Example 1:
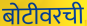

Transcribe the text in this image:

बोटीवरची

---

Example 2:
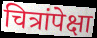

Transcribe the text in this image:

चित्रांपेक्षा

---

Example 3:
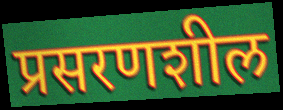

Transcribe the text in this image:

प्रसरणशील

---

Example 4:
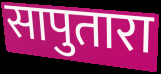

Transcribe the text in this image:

सापुतारा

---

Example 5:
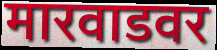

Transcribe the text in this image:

मारवाडवर